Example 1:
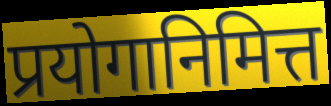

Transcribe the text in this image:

प्रयोगानिमित्त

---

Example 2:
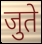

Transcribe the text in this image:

जुते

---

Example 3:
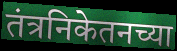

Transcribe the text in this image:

तंत्रनिकेतनच्या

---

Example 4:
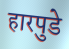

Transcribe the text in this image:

हारपुडे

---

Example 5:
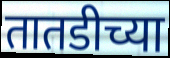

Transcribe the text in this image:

तातडीच्या